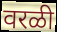
वरळी